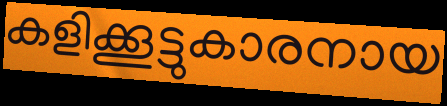
കളിക്കൂട്ടുകാരനായ